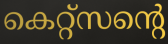
കെറ്റ്സന്റെ